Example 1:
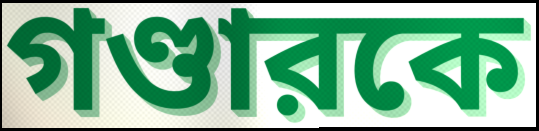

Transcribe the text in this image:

গণ্ডারকে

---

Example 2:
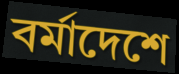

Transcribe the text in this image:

বর্মাদেশে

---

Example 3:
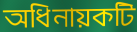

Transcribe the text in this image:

অধিনায়কটি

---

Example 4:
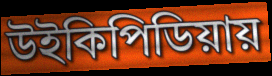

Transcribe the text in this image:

উইকিপিডিয়ায়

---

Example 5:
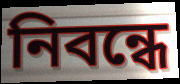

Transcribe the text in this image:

নিবন্ধে